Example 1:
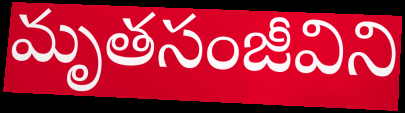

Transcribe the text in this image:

మృతసంజీవిని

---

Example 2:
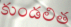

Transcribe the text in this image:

కుండలిత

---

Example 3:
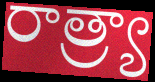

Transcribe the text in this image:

రాత్ర్యా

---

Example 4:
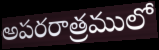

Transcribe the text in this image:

అపరరాత్రములో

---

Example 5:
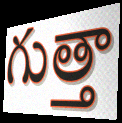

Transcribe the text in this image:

గుత్తా